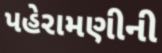
પહેરામણીની